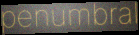
penumbral